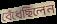
বেঁধেছিলেন